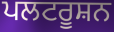
ਪਲਟਰੂਸ਼ਨ